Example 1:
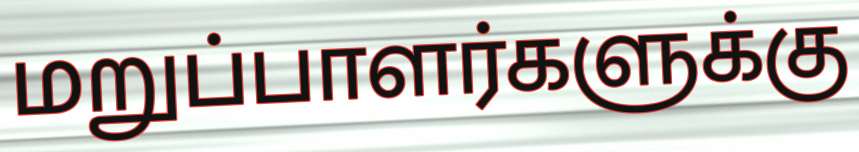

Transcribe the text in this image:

மறுப்பாளர்களுக்கு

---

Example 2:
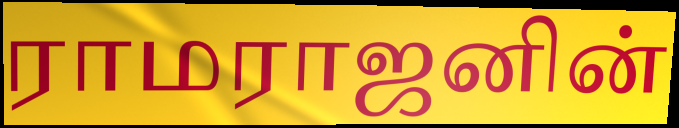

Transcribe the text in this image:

ராமராஜனின்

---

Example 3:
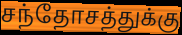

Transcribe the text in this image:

சந்தோசத்துக்கு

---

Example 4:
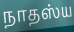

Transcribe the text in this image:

நாதஸ்ய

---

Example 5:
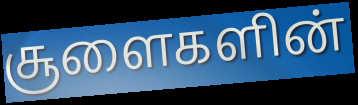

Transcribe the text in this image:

சூளைகளின்